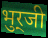
भुर्जी